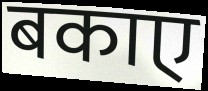
बकाए